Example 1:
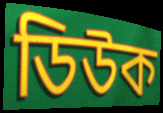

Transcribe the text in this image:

ডিউক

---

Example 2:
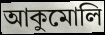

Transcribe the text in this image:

আকুমোলি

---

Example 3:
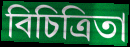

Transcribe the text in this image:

বিচিত্রিতা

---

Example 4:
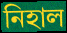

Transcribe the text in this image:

নিহাল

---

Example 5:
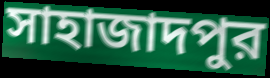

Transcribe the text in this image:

সাহাজাদপুর